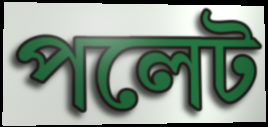
পলেট